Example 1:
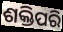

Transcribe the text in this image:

ଶକ୍ତିପରି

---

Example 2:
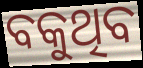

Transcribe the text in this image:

ବକୁଥିବ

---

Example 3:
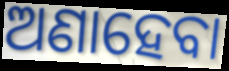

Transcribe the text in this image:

ଅଣାହେବା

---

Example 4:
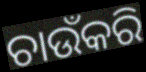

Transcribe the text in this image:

ଚାଉଁକରି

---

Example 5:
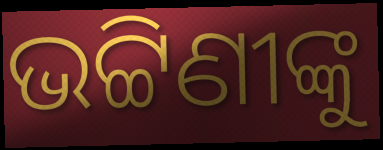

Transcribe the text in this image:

ଭଟ୍ଟିଣୀଙ୍କୁ